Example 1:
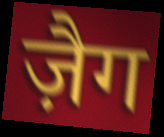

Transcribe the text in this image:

ज़ैग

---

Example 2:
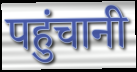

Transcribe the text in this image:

पहुंचानी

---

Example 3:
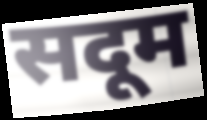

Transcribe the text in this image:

सदूम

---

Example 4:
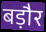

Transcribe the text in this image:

बड़ौर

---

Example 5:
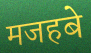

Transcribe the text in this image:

मजहबे